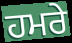
ਹਮਰੇ